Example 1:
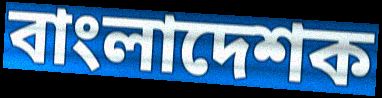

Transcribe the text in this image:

বাংলাদেশক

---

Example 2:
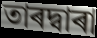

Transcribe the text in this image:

তাৰদ্বাৰা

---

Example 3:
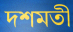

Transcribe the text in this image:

দশমতী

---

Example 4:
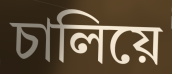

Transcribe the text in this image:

চালিয়ে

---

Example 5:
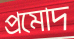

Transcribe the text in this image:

প্ৰমোদ